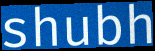
shubh